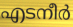
എടനീർ